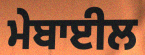
ਮੇਬਾਈਲ